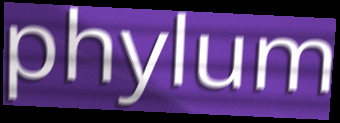
phylum